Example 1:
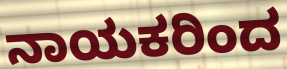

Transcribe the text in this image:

ನಾಯಕರಿಂದ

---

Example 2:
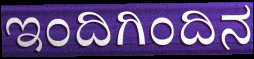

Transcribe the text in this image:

ಇಂದಿಗಿಂದಿನ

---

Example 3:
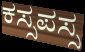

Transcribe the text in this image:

ಕಸ್ಸಪಸ್ಸ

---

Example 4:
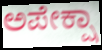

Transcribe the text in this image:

ಅಪೇಕ್ಷಾ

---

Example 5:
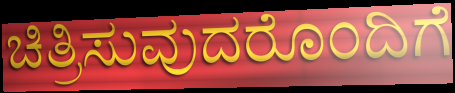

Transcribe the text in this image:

ಚಿತ್ರಿಸುವುದರೊಂದಿಗೆ